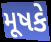
મૂષકે